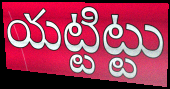
యట్టిట్టు